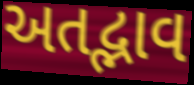
અતદ્ભાવ